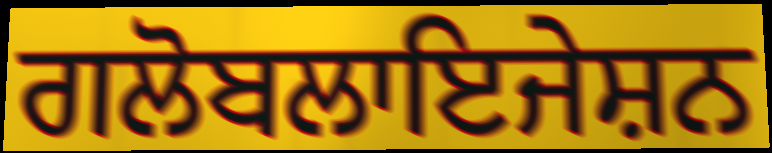
ਗਲੋਬਲਾਇਜੇਸ਼ਨ